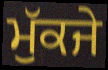
ਮੁੱਕਜੇ